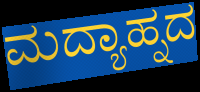
ಮದ್ಯಾಹ್ನದ